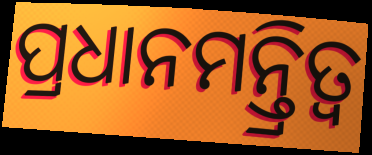
ପ୍ରଧାନମନ୍ତ୍ରିତ୍ଵ